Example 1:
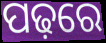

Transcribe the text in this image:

ପଢ଼ରେ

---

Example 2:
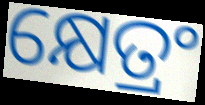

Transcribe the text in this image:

କ୍ଷେତ୍ରଂ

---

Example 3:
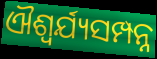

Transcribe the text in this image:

ଐଶ୍ୱର୍ଯ୍ୟସମ୍ପନ୍ନ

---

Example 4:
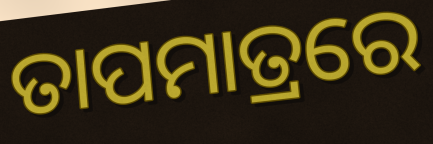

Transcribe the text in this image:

ତାପମାତ୍ରରେ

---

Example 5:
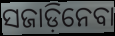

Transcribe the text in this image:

ସଜାଡ଼ିନେବା